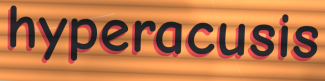
hyperacusis